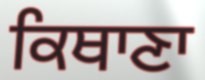
ਕਿਥਾਣਾ